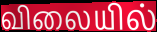
விலையில்